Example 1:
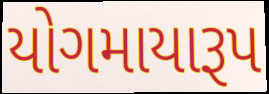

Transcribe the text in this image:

યોગમાયારૂપ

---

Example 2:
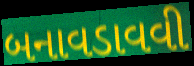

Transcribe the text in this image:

બનાવડાવવી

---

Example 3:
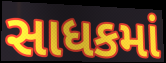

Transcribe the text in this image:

સાધકમાં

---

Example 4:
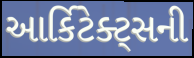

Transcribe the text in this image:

આર્કિટેક્ટ્સની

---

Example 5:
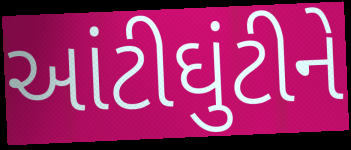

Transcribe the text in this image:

આંટીઘુંટીને